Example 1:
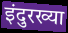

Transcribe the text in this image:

इंदुरख्या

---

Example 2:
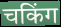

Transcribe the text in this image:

चकिंग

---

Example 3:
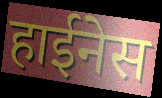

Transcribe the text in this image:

हाईनेस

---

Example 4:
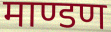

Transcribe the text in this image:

माण्डण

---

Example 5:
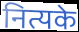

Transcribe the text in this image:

नित्यके